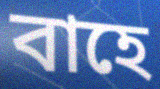
বাহে